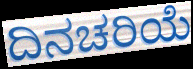
ದಿನಚರಿಯೆ